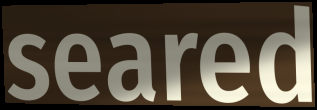
seared